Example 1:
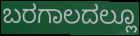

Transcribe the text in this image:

ಬರಗಾಲದಲ್ಲೂ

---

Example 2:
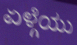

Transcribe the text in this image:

ಏಳ್ಗೆಯು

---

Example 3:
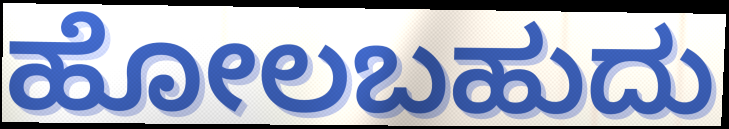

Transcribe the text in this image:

ಹೋಲಬಹುದು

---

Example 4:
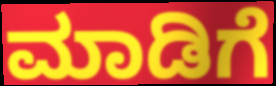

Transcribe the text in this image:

ಮಾಡಿಗೆ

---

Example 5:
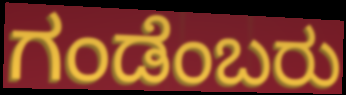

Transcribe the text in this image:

ಗಂಡೆಂಬರು